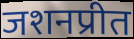
जशनप्रीत